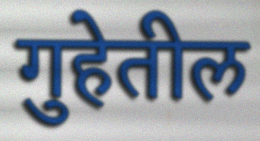
गुहेतील